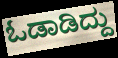
ಓಡಾಡಿದ್ದು